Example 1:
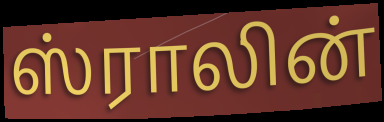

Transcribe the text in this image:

ஸ்ராலின்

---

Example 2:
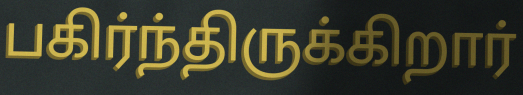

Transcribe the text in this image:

பகிர்ந்திருக்கிறார்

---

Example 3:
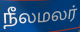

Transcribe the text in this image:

நீலமலர்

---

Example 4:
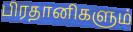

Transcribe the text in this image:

பிரதானிகளும்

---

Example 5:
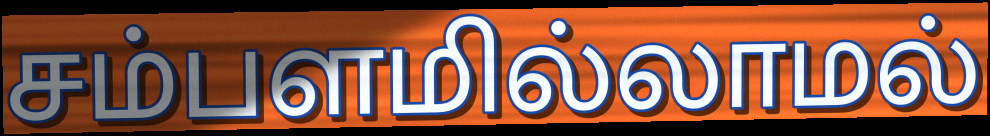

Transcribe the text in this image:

சம்பளமில்லாமல்